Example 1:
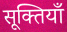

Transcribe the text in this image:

सूक्तियाँ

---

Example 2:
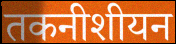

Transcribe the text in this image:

तकनीशीयन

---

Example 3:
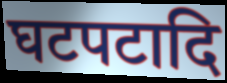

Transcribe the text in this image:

घटपटादि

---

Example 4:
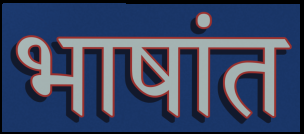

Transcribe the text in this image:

भाषांत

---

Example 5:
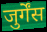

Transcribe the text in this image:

जुर्गेंस